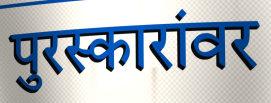
पुरस्कारांवर